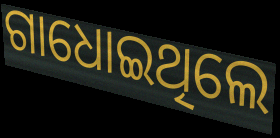
ଗାଧୋଇଥିଲେ